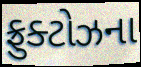
ફ્રુક્ટોઝના